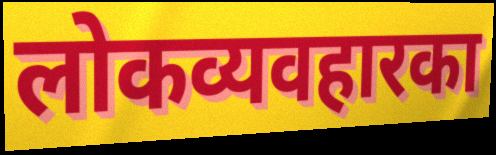
लोकव्यवहारका